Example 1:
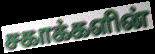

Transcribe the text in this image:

சகாக்களின்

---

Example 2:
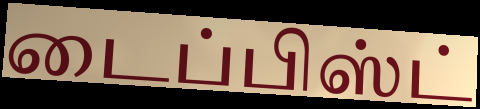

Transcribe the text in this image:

டைப்பிஸ்ட்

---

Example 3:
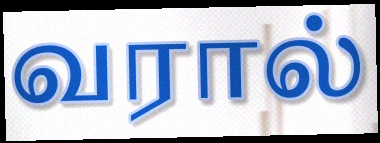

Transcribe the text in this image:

வரால்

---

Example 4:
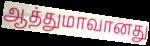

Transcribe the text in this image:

ஆத்துமாவானது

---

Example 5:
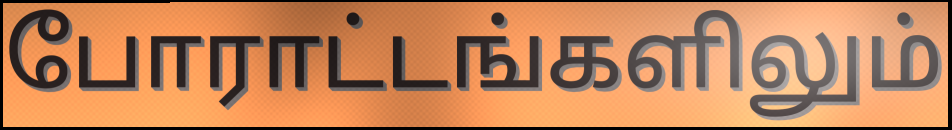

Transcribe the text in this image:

போராட்டங்களிலும்